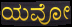
ಯವೋ